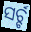
ସର୍ଚ୍ଚ